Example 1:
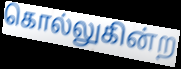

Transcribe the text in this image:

கொல்லுகின்ற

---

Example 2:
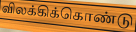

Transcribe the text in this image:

விலக்கிக்கொண்டு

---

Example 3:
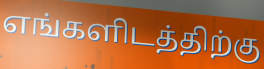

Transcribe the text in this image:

எங்களிடத்திற்கு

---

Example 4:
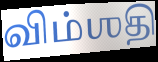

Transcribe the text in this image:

விம்ஶதி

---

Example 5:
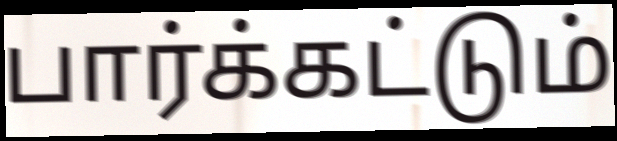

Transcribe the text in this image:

பார்க்கட்டும்